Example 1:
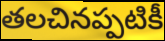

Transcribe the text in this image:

తలచినప్పటికీ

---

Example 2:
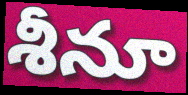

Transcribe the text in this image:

శీనూ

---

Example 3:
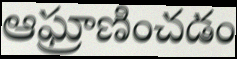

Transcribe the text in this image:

ఆఘ్రాణించడం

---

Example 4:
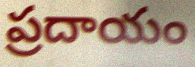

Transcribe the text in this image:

ప్రదాయం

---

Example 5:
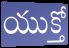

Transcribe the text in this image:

యుక్తో